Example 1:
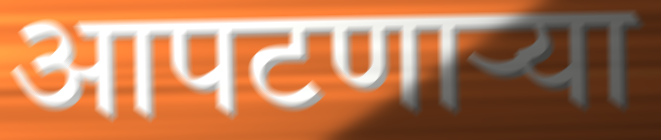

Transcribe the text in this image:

आपटणाऱ्या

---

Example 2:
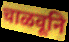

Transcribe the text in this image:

चाळवूनि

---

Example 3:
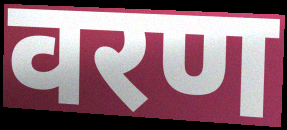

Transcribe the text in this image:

वरण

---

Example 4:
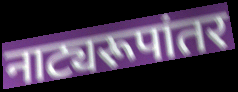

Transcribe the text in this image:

नाट्यरूपांतर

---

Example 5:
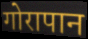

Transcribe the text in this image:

गोरापान